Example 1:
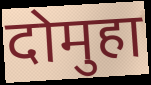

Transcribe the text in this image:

दोमुहा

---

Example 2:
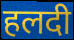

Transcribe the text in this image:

हलदी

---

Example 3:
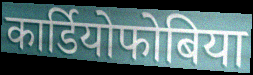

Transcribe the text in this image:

कार्डियोफोबिया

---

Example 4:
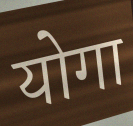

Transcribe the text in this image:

योगा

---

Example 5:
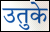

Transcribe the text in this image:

उतुके